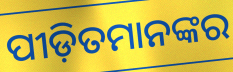
ପୀଡ଼ିତମାନଙ୍କର